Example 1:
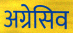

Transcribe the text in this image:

अग्रेसिव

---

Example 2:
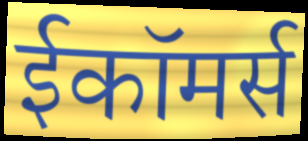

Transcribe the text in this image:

ईकॉमर्स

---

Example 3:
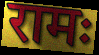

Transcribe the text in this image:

रामः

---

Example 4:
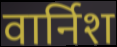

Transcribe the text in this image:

वार्निश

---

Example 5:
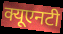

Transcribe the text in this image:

क्यूएनटी